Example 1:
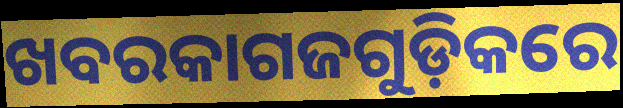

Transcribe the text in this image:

ଖବରକାଗଜଗୁଡ଼ିକରେ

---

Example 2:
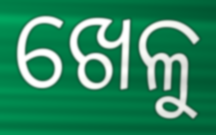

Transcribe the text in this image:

ଖେଳୁ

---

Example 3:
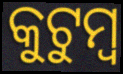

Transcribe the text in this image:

କୁଟୁମ୍ୱ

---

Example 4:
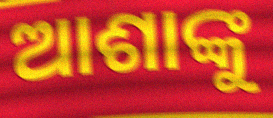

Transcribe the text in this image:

ଆଶାଙ୍କୁ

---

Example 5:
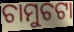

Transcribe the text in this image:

ଚାମୁଚଟା